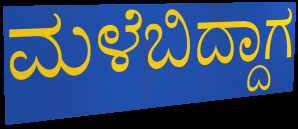
ಮಳೆಬಿದ್ದಾಗ